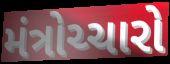
મંત્રોચ્ચારો